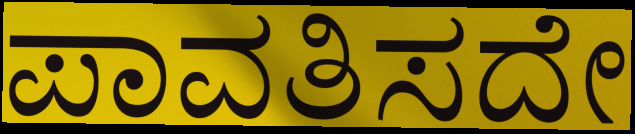
ಪಾವತಿಸದೇ